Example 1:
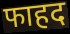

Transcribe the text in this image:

फाहद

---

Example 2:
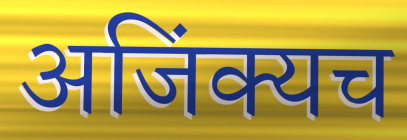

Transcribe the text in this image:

अजिंक्यच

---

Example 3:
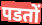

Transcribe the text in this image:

पडतों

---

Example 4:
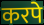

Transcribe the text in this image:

करपे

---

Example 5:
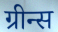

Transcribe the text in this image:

ग्रीन्स